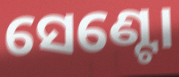
ସେଣ୍ଟୋ